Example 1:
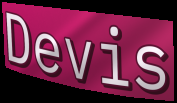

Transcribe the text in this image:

Devis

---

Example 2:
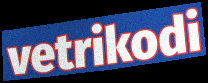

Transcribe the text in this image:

vetrikodi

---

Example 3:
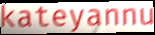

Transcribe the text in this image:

kateyannu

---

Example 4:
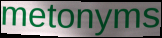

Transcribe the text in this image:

metonyms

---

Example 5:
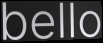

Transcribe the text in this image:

bello